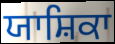
ਯਾਸ਼ਿਕਾ